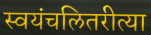
स्वयंचलितरीत्या